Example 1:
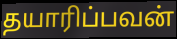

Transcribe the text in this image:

தயாரிப்பவன்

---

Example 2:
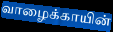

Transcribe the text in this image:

வாழைக்காயின்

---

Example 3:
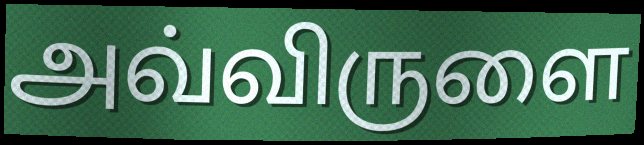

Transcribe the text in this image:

அவ்விருளை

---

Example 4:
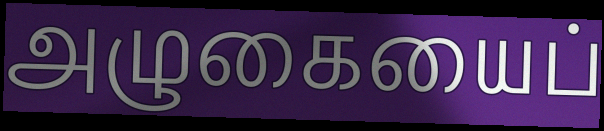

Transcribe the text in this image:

அழுகையைப்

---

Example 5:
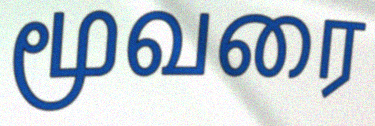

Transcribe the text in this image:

மூவரை